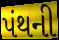
પંથની